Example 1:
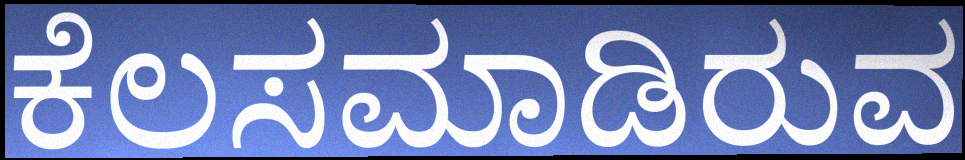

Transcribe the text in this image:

ಕೆಲಸಮಾಡಿರುವ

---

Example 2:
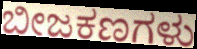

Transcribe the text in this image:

ಬೀಜಕಣಗಳು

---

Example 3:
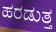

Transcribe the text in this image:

ಹರಡುತ್ತ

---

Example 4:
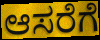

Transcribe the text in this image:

ಆಸರೆಗೆ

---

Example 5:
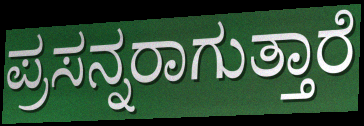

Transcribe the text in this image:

ಪ್ರಸನ್ನರಾಗುತ್ತಾರೆ